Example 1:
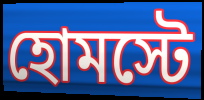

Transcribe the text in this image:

হোমস্টে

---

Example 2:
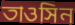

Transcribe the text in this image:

তাওসিন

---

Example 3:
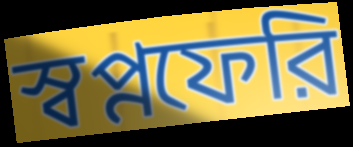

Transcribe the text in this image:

স্বপ্নফেরি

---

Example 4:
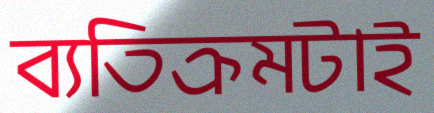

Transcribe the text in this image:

ব্যতিক্রমটাই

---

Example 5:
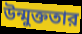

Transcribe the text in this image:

উন্মুক্ততার